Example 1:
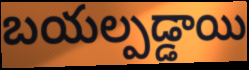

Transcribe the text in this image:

బయల్పడ్డాయి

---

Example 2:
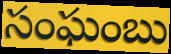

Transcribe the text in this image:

సంఘంబు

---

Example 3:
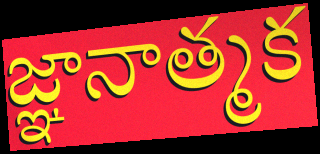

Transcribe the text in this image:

జ్ఞానాత్మక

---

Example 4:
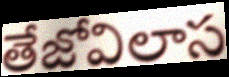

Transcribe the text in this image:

తేజోవిలాస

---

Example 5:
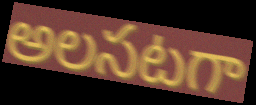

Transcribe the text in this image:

అలసటగా